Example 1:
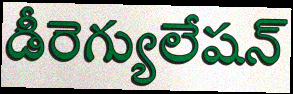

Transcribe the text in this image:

డీరెగ్యులేషన్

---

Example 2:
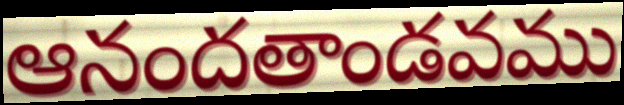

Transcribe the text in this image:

ఆనందతాండవము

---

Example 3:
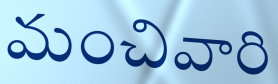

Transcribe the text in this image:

మంచివారి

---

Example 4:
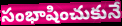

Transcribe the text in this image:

సంభాషించుకునే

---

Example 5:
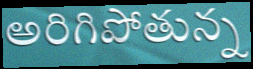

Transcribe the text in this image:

అరిగిపోతున్న